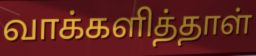
வாக்களித்தாள்